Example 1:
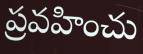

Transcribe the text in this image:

ప్రవహించు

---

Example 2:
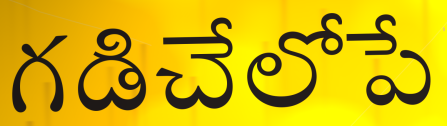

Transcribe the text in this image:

గడిచేలోపే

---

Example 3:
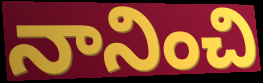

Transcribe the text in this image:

నానించి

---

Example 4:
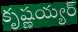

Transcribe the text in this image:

కృష్ణయ్యర్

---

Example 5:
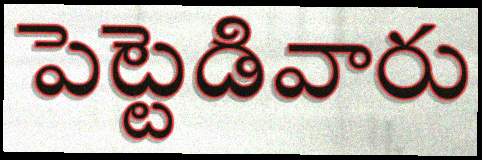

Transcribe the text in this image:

పెట్టెడివారు